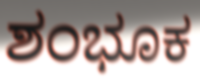
ಶಂಭೂಕ